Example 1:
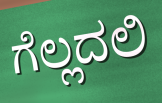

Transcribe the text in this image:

ಗೆಲ್ಲದಲಿ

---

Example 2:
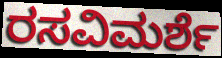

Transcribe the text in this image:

ರಸವಿಮರ್ಶೆ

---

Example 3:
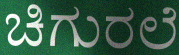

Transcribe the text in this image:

ಚಿಗುರಲೆ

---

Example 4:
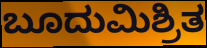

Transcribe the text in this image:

ಬೂದುಮಿಶ್ರಿತ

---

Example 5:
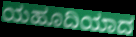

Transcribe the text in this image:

ಯಹೂದಿಯಾದ